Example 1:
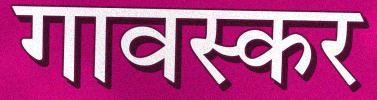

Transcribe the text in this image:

गावस्‍कर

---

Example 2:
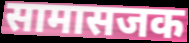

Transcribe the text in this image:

सामासजक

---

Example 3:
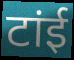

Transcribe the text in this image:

टांई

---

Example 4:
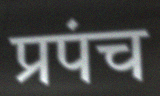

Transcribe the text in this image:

प्रपंच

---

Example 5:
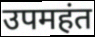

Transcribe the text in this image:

उपमहंत